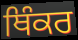
ਥਿੰਕਰ